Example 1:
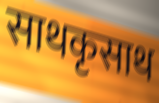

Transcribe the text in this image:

साथकृसाथ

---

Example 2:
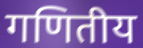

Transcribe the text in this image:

गणितीय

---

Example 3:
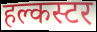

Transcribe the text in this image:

हल्कस्टर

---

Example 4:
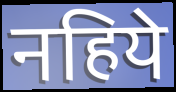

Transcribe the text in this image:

नहिये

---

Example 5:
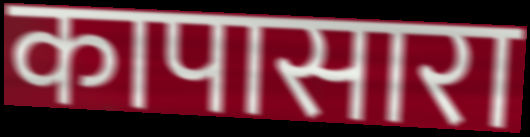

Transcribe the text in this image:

कापासारा